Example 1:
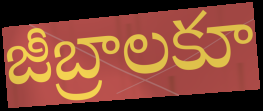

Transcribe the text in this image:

జీబ్రాలకూ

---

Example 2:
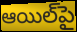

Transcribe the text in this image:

ఆయిల్‌పై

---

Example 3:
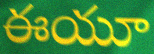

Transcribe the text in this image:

ఈయూ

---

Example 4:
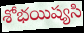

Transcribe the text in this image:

శోభయిష్యసి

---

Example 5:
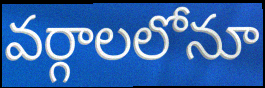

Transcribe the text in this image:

వర్గాలలోనూ